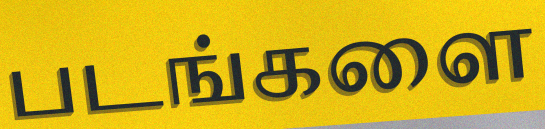
படங்களை